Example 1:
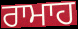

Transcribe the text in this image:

ਰਾਮਾਹ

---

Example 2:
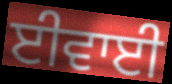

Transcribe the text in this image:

ਈਵਾਈ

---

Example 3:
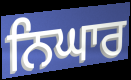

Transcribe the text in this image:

ਨਿਘਾਰ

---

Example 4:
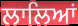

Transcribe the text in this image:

ਲਾਲਿਆਂ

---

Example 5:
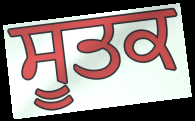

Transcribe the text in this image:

ਸੂਤਕ